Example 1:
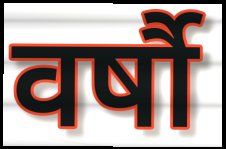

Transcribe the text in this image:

वर्षौ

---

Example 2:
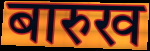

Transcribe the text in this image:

बारुख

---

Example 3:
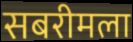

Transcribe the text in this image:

सबरीमला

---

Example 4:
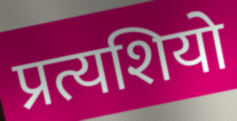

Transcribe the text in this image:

प्रत्यशियो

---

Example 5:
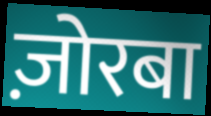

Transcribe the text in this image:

ज़ोरबा